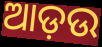
ଆଡ଼ଉ